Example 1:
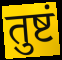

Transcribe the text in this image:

तुष्टं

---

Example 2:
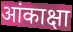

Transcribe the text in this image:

आंकाक्षा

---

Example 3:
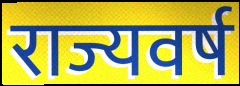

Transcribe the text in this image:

राज्यवर्ष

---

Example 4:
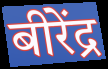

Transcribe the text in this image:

बीरेंद्र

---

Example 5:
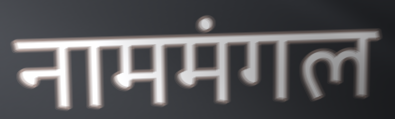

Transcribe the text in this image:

नाममंगल